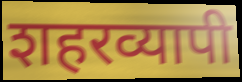
शहरव्यापी